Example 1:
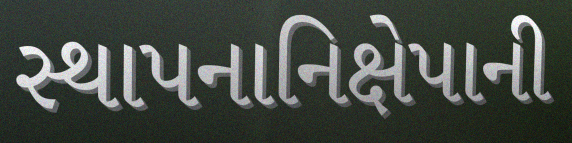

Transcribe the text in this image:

સ્થાપનાનિક્ષેપાની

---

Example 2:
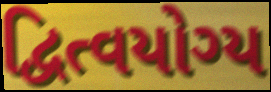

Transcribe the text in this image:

દ્વિત્વયોગ્ય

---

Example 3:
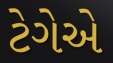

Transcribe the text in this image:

ટેગેએ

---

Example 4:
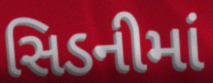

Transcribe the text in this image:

સિડનીમાં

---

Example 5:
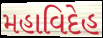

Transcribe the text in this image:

મહાવિદેહ